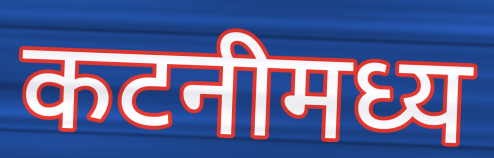
कटनीमध्य